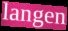
langen